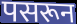
पसरून